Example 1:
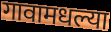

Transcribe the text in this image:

गावामधल्या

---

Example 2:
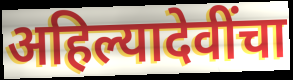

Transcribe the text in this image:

अहिल्यादेवींचा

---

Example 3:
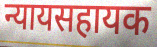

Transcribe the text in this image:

न्यायसहायक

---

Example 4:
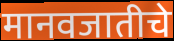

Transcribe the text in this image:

मानवजातीचे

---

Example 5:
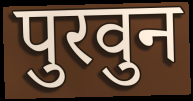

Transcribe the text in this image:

पुरवुन